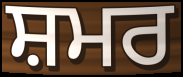
ਸ਼ਮਰ